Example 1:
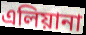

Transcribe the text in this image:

এলিয়ানা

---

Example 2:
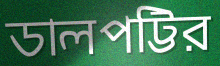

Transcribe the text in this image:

ডালপট্টির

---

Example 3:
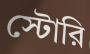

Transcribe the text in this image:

স্টোরি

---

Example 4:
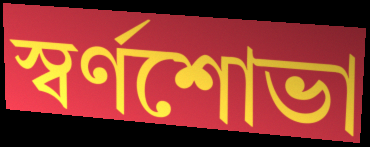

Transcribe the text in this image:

স্বর্ণশোভা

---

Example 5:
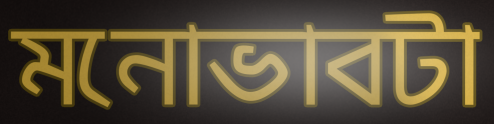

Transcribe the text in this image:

মনোভাবটা